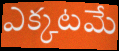
ఎక్కటమే